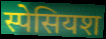
स्पेसियश